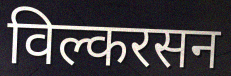
विल्करसन